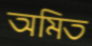
অমিত